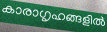
കാരാഗൃഹങ്ങളിൽ